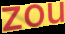
zou